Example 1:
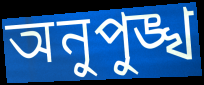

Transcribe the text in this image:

অনুপুঙ্খ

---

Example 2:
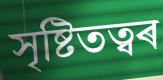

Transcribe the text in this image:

সৃষ্টিতত্বৰ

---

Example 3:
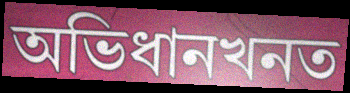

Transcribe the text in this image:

অভিধানখনত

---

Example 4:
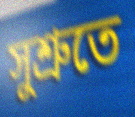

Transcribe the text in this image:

সুশ্ৰুতে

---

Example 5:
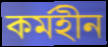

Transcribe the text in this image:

কৰ্মহীন